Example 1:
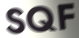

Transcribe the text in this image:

SQF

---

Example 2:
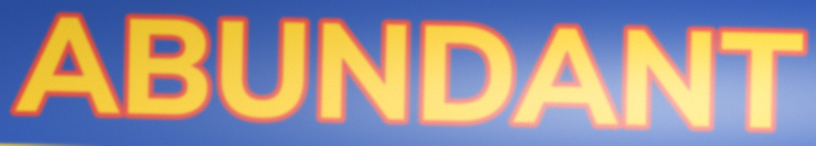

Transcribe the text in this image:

ABUNDANT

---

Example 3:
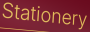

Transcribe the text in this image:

Stationery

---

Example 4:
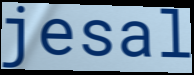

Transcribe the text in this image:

jesal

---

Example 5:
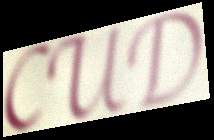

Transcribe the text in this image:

CUD